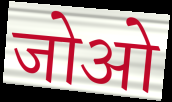
जोओ